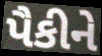
પૈકીને